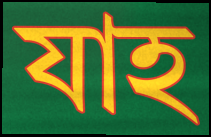
যাহ